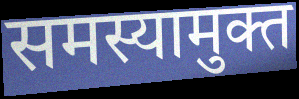
समस्यामुक्त